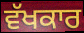
ਵੱਖਕਾਰ